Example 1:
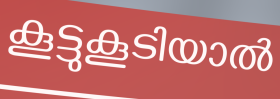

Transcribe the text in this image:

കൂട്ടുകൂടിയാൽ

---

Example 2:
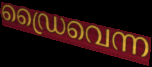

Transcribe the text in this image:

ഡ്രൈവെന്ന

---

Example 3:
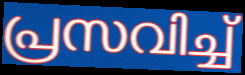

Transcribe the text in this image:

പ്രസവിച്ച്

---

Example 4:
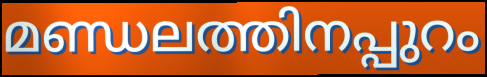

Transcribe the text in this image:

മണ്ഡലത്തിനപ്പുറം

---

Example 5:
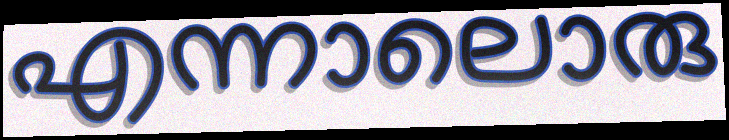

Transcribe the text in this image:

എന്നാലൊരു